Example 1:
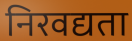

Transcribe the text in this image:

निरवद्यता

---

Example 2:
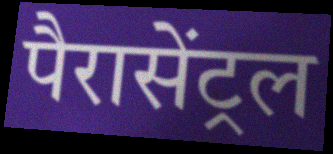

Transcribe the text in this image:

पैरासेंट्रल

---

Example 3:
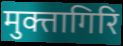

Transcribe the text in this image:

मुक्तागिरि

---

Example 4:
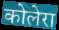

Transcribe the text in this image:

कोलेरा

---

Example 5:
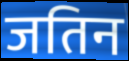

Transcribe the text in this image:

जतिन